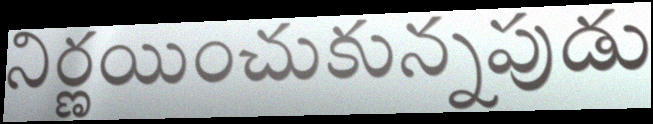
నిర్ణయించుకున్నపుడు